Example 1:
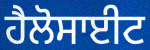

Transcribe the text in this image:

ਹੈਲੋਸਾਈਟ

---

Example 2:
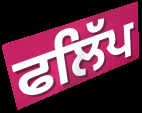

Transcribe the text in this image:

ਫਲਿੱਪ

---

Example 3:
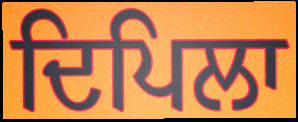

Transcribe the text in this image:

ਦਿਪਿਲਾ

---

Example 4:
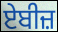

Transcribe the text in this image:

ਏਬੀਜ਼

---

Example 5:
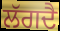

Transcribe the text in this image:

ਲੱਗਦੈ